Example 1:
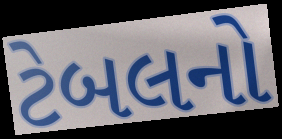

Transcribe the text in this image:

ટેબલનો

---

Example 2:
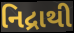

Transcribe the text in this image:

નિદ્રાથી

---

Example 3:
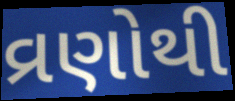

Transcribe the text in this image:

વ્રણોથી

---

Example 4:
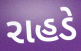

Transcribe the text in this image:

રાહડે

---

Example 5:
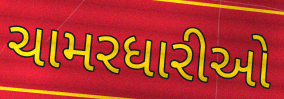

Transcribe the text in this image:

ચામરધારીઓ